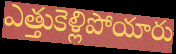
ఎత్తుకెళ్లిపోయారు